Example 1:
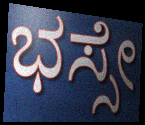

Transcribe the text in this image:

ಭಸ್ಸೇ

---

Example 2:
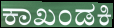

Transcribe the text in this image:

ಕಾಖಂಡಕಿ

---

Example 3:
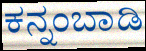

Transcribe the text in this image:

ಕನ್ನಂಬಾಡಿ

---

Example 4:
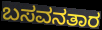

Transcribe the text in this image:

ಬಸವನತಾರ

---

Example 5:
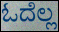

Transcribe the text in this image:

ಓದೆಲ್ಲ